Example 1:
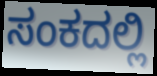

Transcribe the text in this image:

ಸಂಕದಲ್ಲಿ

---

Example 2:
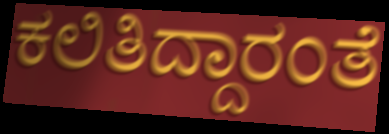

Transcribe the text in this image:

ಕಲಿತಿದ್ದಾರಂತೆ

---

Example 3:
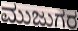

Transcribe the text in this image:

ಮುಜುಗರ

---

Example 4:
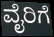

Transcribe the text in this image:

ವೈರಿಗೆ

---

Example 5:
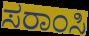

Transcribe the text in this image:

ಸರಾಂಸಿ